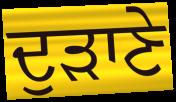
ਦੁੜਾਣੇ